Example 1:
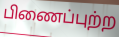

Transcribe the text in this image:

பிணைப்புற்ற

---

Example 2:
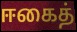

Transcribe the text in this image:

ஈகைத்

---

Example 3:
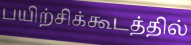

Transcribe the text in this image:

பயிற்சிக்கூடத்தில்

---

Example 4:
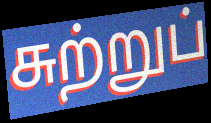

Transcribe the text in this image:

சுற்றுப்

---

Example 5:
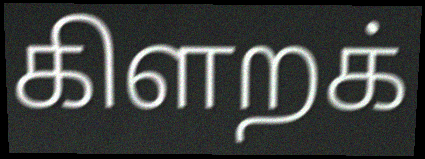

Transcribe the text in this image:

கிளறக்